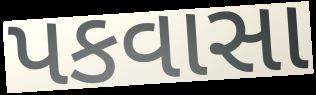
પકવાસા